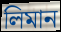
লিমান